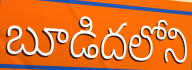
బూడిదలోని